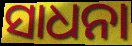
ସାଧନା